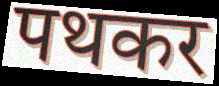
पथकर